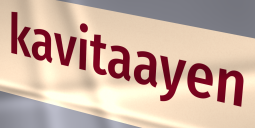
kavitaayen